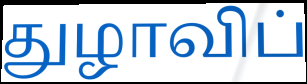
துழாவிப்